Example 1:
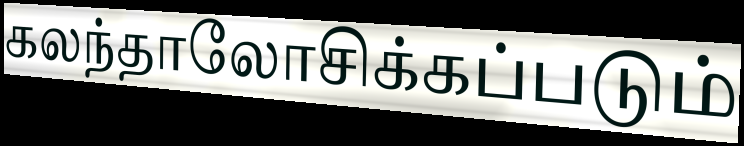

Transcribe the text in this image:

கலந்தாலோசிக்கப்படும்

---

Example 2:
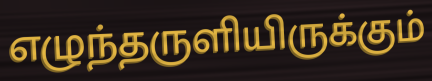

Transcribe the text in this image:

எழுந்தருளியிருக்கும்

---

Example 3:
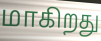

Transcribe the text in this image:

மாகிறது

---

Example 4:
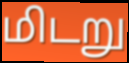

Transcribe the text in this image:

மிடறு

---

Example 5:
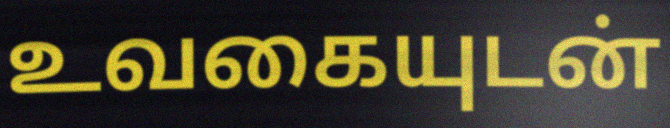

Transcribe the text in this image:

உவகையுடன்